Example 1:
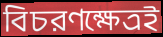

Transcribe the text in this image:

বিচরণক্ষেত্রই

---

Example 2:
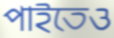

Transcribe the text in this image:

পাইতেও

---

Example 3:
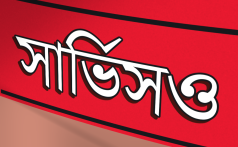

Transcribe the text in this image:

সার্ভিসও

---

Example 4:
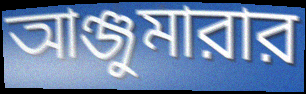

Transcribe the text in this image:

আঞ্জুমারার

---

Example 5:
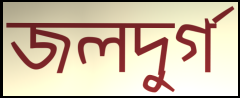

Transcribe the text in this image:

জলদুর্গ